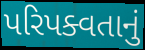
પરિપક્વતાનું